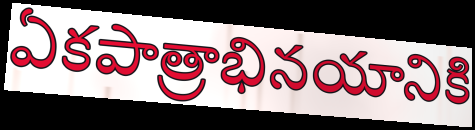
ఏకపాత్రాభినయానికి